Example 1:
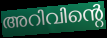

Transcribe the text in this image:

അറിവിന്റെ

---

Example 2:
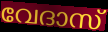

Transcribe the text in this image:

വേദാസ്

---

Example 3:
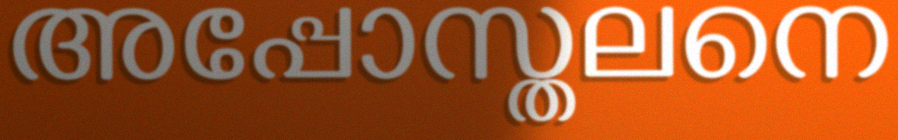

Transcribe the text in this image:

അപ്പോസ്തലനെ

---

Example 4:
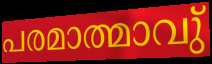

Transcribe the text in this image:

പരമാത്മാവു്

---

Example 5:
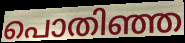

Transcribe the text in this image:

പൊതിഞ്ഞ